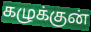
கழுக்குன்